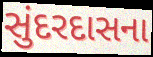
સુંદરદાસના